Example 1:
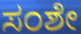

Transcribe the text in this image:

ಸಂಶೇ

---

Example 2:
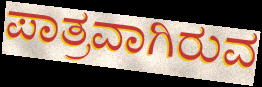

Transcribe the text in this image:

ಪಾತ್ರವಾಗಿರುವ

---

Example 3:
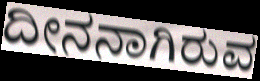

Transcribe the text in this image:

ದೀನನಾಗಿರುವ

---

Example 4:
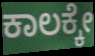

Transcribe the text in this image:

ಕಾಲಕ್ಕೇ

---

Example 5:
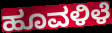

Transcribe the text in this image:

ಹೂವಳಿಳೆ